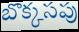
బొక్కసపు